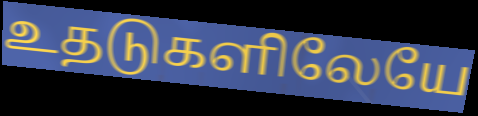
உதடுகளிலேயே